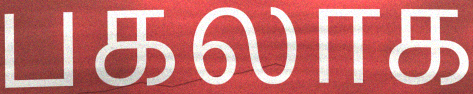
பகலாக